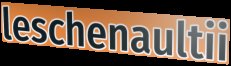
leschenaultii